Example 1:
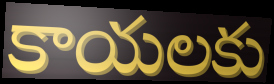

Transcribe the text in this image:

కాయలకు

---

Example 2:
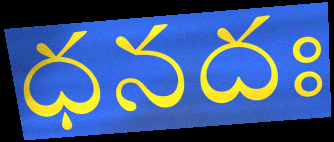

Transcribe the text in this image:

ధనదః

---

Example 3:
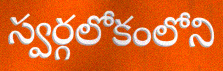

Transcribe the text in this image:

స్వర్గలోకంలోని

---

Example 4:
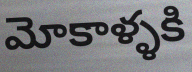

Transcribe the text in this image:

మోకాళ్ళకి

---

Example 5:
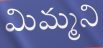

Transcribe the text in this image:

మిమ్మని